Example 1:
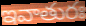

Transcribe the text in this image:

ఇవాతురః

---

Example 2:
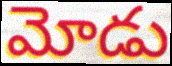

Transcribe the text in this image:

మోడు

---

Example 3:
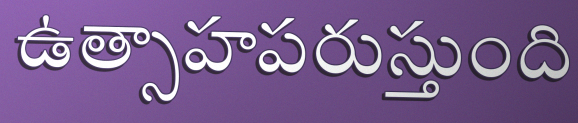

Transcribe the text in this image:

ఉత్సాహపరుస్తుంది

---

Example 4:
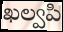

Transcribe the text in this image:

ఖల్వపి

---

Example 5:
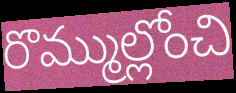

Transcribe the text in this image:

రొమ్ముల్లోంచి